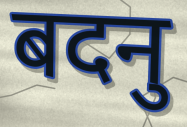
बदनु